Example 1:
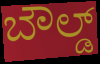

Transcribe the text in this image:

ಬೌಲ್ಡ್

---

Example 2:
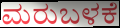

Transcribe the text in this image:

ಮರುಬಳಕೆ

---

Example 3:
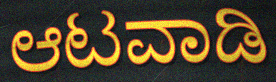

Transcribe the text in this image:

ಆಟವಾಡಿ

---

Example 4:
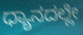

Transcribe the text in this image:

ಧ್ಯಾನದಲ್ಲೇ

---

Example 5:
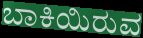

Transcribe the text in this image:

ಬಾಕಿಯಿರುವ